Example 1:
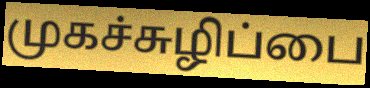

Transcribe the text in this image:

முகச்சுழிப்பை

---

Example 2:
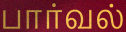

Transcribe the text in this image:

பார்வல்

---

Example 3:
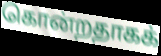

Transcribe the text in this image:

கொன்றதாகக்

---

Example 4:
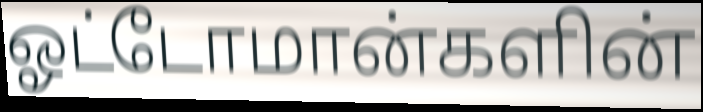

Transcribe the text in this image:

ஓட்டோமான்களின்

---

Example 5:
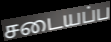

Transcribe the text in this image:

சடையப்ப